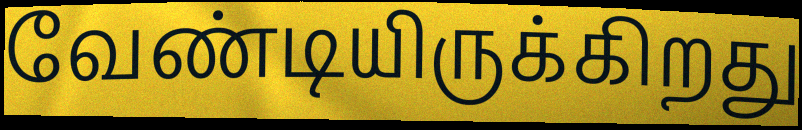
வேண்டியிருக்கிறது